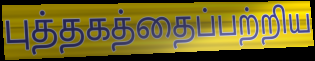
புத்தகத்தைப்பற்றிய